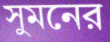
সুমনের